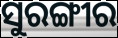
ସୁରଙ୍ଗୀର